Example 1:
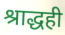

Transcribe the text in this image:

श्राद्धही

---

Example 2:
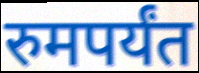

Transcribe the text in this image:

रुमपर्यंत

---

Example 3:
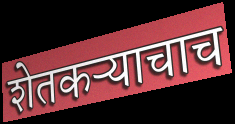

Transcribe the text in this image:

शेतकऱ्याचाच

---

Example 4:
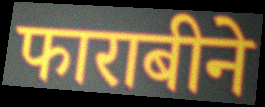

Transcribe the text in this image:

फाराबीने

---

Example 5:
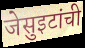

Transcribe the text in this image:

जेसुइटांची